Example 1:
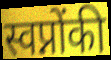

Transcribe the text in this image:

स्वप्नोंकी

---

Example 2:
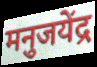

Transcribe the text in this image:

मनुजयेंद्र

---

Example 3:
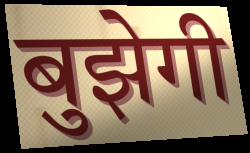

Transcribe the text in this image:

बुझेगी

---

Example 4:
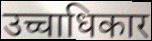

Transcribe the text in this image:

उच्चाधिकार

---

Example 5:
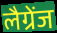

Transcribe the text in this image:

लैग्रेंज